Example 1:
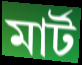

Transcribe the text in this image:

মার্ট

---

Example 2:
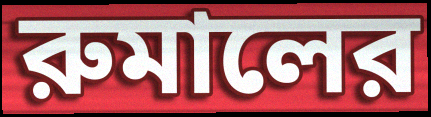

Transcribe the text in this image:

রুমালের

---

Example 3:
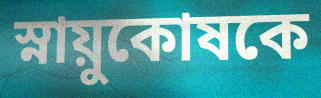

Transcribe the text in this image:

স্নায়ুকোষকে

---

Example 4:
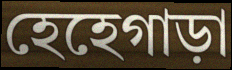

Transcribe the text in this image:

হেহেগাড়া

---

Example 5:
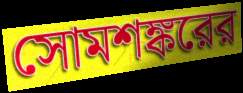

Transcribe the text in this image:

সোমশঙ্করের